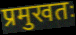
प्रमुखतः